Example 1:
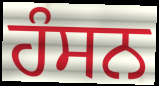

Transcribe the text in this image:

ਹੰਸਨ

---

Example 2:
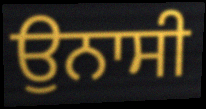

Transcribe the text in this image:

ਉਨਾਸੀ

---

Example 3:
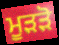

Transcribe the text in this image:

ਮੂੜੜੋ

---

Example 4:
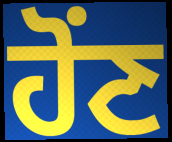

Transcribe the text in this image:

ਹੋਂਣ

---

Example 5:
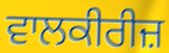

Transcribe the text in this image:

ਵਾਲਕੀਰੀਜ਼